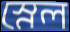
স্নেল